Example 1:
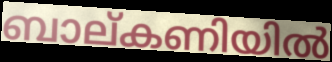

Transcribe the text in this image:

ബാല്കണിയിൽ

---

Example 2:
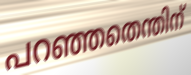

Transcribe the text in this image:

പറഞ്ഞതെന്തിന്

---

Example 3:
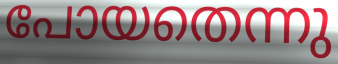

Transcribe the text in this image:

പോയതെന്നു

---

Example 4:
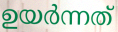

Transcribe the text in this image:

ഉയർന്നത്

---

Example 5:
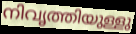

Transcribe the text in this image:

നിവൃത്തിയുള്ളു